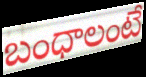
బంధాలంటే